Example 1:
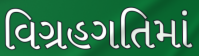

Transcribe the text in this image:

વિગ્રહગતિમાં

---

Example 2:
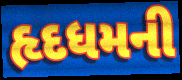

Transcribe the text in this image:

હૃદધમની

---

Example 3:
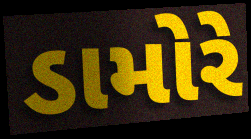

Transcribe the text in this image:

ડામોરે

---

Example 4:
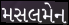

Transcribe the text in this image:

મસલમેન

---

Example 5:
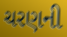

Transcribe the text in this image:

ચરણની